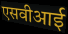
एसवीआई